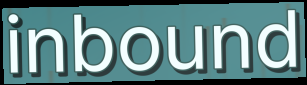
inbound